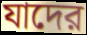
যাদের